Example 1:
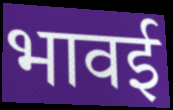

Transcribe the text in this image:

भावई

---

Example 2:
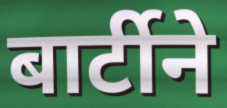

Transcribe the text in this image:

बार्टीने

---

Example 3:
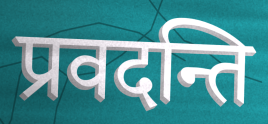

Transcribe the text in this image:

प्रवदन्ति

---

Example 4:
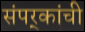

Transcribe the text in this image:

संपर्कांची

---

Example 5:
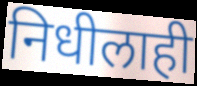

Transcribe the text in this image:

निधीलाही